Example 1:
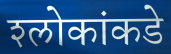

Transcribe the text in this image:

श्लोकांकडे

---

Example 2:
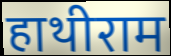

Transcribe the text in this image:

हाथीराम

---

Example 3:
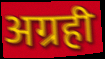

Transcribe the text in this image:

अग्रही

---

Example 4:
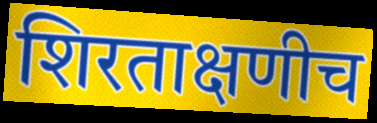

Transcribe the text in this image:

शिरताक्षणीच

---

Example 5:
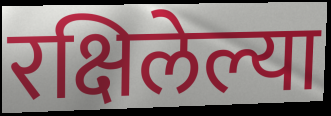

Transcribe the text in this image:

रक्षिलेल्या